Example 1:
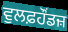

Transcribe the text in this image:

ਵੁਲਫ਼ਹੌਂਡਜ਼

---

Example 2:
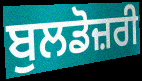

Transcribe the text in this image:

ਬੁਲਡੋਜ਼ਰੀ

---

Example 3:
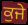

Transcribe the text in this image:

ਕੁਜੇ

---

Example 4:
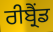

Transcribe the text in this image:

ਰੀਬ੍ਰੈਂਡ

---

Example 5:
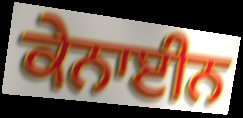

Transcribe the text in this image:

ਕੇਨਾਈਨ